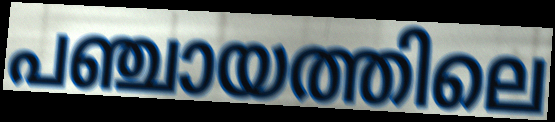
പഞ്ചായത്തിലെ